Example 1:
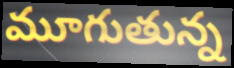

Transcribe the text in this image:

మూగుతున్న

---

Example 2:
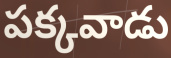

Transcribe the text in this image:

పక్కవాడు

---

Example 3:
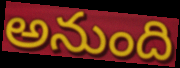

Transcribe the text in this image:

అనుంది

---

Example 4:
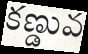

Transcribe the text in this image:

కణ్డువ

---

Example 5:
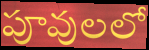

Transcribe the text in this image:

పూవులలో